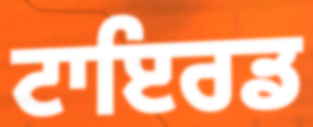
ਟਾਇਰਡ